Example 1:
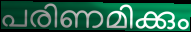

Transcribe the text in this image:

പരിണമിക്കും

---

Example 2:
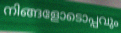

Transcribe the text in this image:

നിങ്ങളോടൊപ്പവും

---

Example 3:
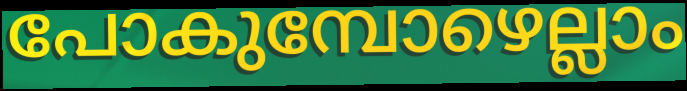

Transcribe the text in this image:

പോകുമ്പോഴെല്ലാം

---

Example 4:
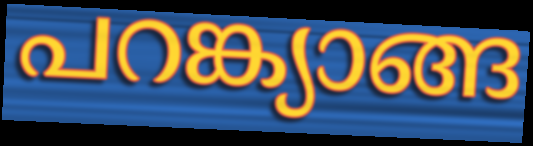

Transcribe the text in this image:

പറങ്ക്യാങ്ങ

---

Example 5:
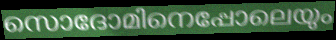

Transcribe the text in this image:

സൊദോമിനെപ്പോലെയും